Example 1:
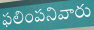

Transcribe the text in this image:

ఫలింపనివారు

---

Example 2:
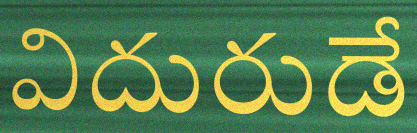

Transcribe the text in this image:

విదురుడే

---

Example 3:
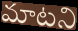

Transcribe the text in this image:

మాటని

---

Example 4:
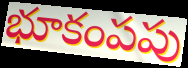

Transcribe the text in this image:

భూకంపపు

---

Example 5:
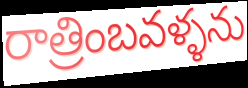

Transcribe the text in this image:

రాత్రింబవళ్ళను